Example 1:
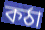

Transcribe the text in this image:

কঠা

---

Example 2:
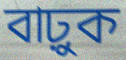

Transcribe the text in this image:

বাঢ়ুক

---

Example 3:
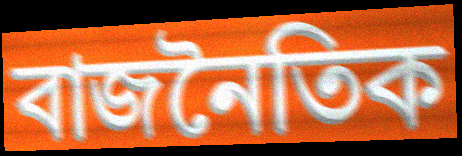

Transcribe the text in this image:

বাজনৈতিক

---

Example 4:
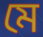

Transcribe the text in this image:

মে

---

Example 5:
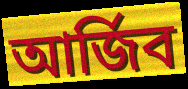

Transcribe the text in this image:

আৰ্জিব